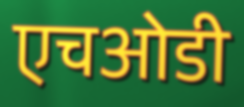
एचओडी